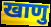
खाणु